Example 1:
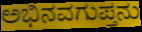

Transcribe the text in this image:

ಅಭಿನವಗುಪ್ತನು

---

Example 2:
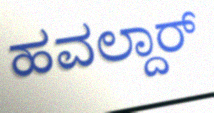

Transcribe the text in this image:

ಹವಲ್ದಾರ್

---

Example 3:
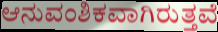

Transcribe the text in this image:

ಆನುವಂಶಿಕವಾಗಿರುತ್ತವೆ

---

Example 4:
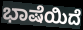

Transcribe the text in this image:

ಭಾಷೆಯಿದೆ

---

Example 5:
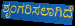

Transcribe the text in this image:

ಶೃಂಗರಿಸಲಾಗಿದೆ